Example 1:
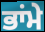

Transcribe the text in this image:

ਭਾਂਮੇ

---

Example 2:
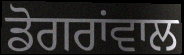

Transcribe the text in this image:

ਡੋਗਰਾਂਵਾਲ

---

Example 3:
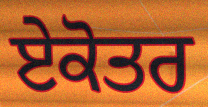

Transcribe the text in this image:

ਏਕੋਤਰ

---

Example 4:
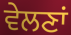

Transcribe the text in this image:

ਵੇਲਣਾਂ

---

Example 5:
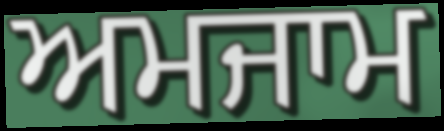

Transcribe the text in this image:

ਅਮਜਾਮ